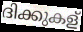
ദിക്കുകള്